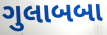
ગુલાબબા